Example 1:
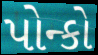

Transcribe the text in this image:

પોન્કો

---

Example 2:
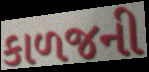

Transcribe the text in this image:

કાળજની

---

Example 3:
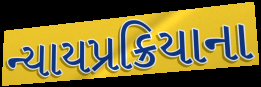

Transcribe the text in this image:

ન્યાયપ્રક્રિયાના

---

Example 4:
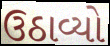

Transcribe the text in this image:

ઉઠાવ્યો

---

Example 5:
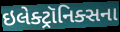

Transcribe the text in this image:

ઇલેક્ટ્રૉનિક્સના